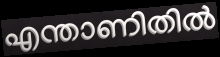
എന്താണിതിൽ